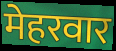
मेहरवार